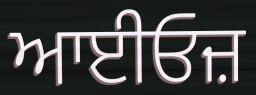
ਆਈਓਜ਼